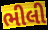
ભીલી